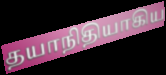
தயாநிதியாகிய